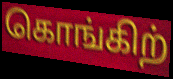
கொங்கிற்